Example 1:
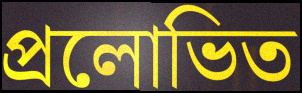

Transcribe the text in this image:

প্ৰলোভিত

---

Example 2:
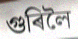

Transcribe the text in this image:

গুৰিলৈ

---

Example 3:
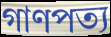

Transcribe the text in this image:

গাণপত্য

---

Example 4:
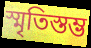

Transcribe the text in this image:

স্মৃতিস্তম্ভ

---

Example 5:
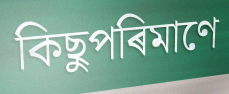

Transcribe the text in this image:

কিছুপৰিমাণে